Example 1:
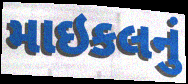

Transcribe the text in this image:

માઇકલનું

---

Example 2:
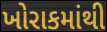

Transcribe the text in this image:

ખોરાકમાંથી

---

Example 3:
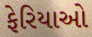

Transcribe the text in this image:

ફેરિયાઓ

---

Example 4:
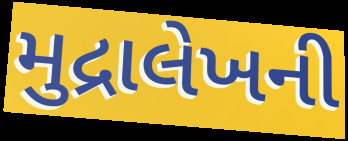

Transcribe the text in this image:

મુદ્રાલેખની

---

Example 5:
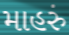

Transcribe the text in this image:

માહરું